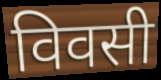
विवसी